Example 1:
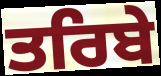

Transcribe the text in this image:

ਤਰਿਬੇ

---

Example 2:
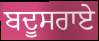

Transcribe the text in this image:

ਬਦੂਸਰਾਏ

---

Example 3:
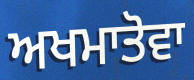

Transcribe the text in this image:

ਅਖਮਾਤੋਵਾ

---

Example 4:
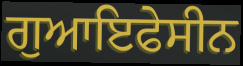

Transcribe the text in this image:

ਗੁਆਇਫੇਸੀਨ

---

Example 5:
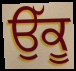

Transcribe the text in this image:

ਉੱਕੂ